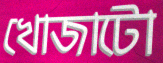
খোজাটো